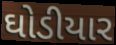
ઘોડીયાર